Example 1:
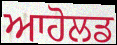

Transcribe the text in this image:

ਆਹੋਲਡ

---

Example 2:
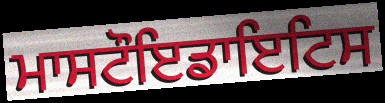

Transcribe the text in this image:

ਮਾਸਟੌਇਡਾਇਟਿਸ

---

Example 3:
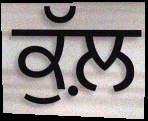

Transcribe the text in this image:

ਕੁੱਲ਼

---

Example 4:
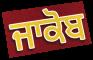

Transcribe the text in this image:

ਜਾਕੋਬ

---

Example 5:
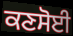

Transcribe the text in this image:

ਕਣਸੋਈ